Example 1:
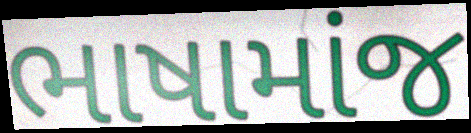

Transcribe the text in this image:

ભાષામાંજ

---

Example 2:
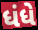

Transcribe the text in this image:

ધંધે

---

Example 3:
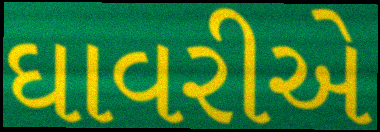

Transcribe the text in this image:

ઘાવરીએ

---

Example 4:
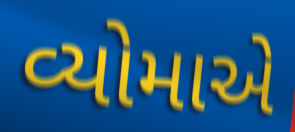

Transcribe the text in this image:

વ્યોમાએ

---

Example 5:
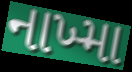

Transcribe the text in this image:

નાખ્મા